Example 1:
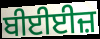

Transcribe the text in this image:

ਬੀਈਈਜ਼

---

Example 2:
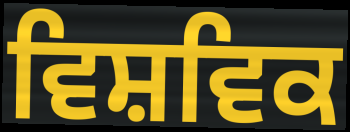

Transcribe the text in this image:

ਵਿਸ਼ਵਿਕ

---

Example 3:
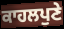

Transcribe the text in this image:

ਕਾਹਲਪੁਣੇ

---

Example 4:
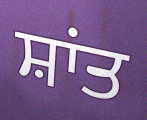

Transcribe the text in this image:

ਸ਼ਾਂਤ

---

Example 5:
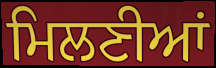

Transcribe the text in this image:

ਮਿਲਣੀਆਂ